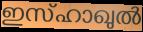
ഇസ്ഹാഖുൽ